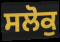
ਸਲੋਕੁ